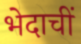
भेदाचीं